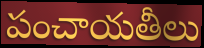
పంచాయతీలు